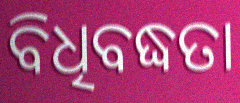
ବିଧିବଦ୍ଧତା